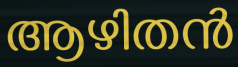
ആഴിതൻ